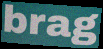
brag